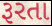
રૂરતા